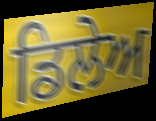
ਡਿਲੇਅ